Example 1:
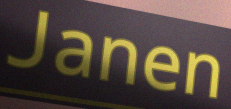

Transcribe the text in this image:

Janen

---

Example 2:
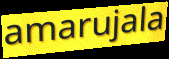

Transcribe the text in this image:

amarujala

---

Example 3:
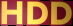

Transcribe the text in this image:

HDD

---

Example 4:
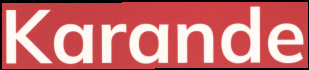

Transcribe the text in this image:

Karande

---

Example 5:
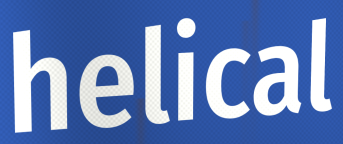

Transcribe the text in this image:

helical